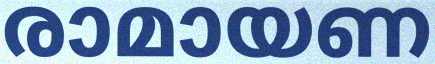
രാമായണ